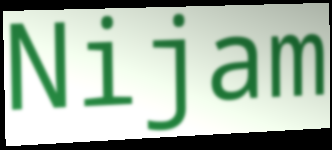
Nijam